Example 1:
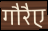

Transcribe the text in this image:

गौरैए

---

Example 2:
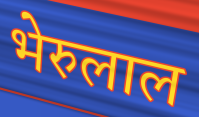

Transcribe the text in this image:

भेरुलाल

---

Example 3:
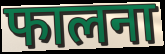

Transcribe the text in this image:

फालना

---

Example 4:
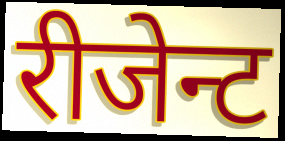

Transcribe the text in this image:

रीजेन्ट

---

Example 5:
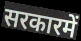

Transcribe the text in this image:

सरकारमें